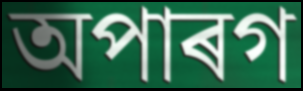
অপাৰগ